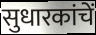
सुधारकांचें